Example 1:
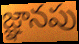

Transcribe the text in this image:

జ్ఞానపు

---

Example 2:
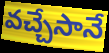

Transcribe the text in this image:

వచ్చేసానే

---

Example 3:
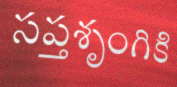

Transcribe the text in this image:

సప్తశృంగికి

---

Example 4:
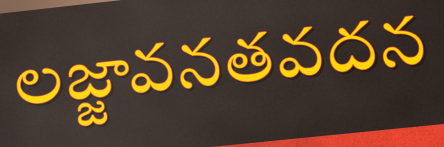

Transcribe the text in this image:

లజ్జావనతవదన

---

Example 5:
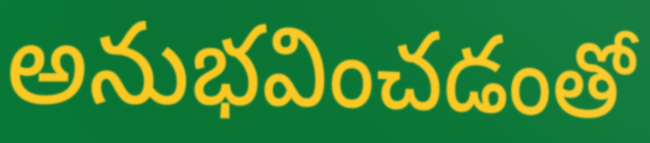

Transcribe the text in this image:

అనుభవించడంతో